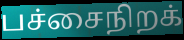
பச்சைநிறக்